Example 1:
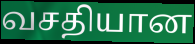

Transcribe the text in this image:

வசதியான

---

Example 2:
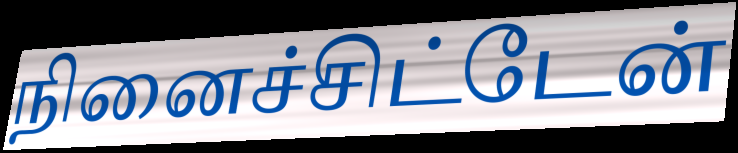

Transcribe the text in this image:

நினைச்சிட்டேன்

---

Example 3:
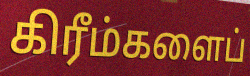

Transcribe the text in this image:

கிரீம்களைப்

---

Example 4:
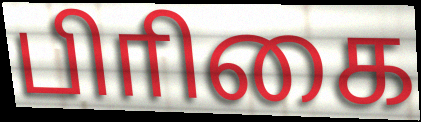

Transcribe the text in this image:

பிரிகை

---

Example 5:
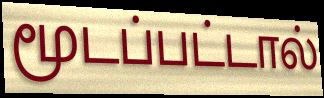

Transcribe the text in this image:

மூடப்பட்டால்